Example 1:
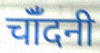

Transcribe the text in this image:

चॉँदनी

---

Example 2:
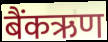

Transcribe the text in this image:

बैंकऋण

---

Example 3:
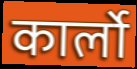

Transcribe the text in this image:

कार्लो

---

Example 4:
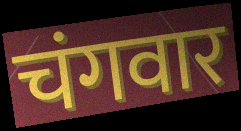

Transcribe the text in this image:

चंगवार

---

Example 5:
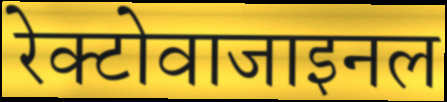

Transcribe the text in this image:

रेक्टोवाजाइनल